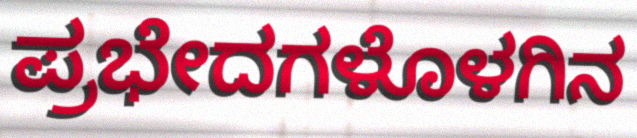
ಪ್ರಭೇದಗಳೊಳಗಿನ